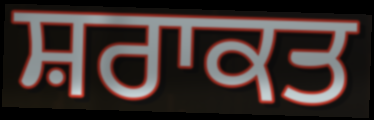
ਸ਼ਰਾਕਤ